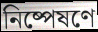
নিষ্পেষণে